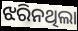
ଝରିନଥିଲା